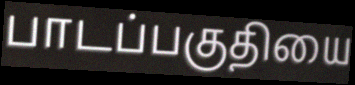
பாடப்பகுதியை